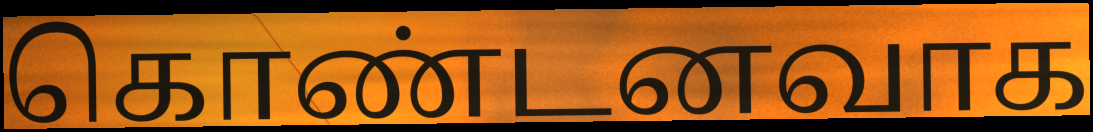
கொண்டனவாக